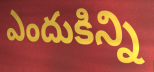
ఎందుకిన్ని